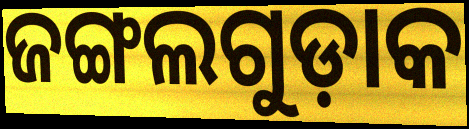
ଜଙ୍ଗଲଗୁଡ଼ାକ